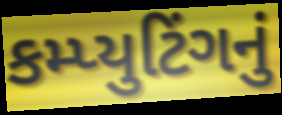
કમ્પ્યુટિંગનું